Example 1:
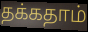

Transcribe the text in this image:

தக்கதாம்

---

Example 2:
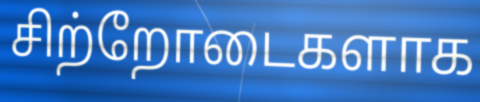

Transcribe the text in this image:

சிற்றோடைகளாக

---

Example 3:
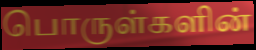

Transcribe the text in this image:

பொருள்களின்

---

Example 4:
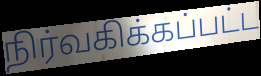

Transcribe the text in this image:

நிர்வகிக்கப்பட்ட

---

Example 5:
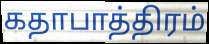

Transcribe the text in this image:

கதாபாத்திரம்